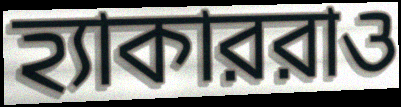
হ্যাকাররাও